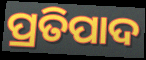
ପ୍ରତିପାଦ